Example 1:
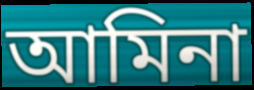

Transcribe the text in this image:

আমিনা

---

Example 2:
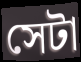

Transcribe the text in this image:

সেটা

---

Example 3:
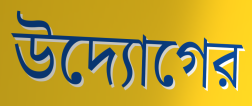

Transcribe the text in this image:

উদ্যোগের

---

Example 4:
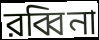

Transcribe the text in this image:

রব্বিনা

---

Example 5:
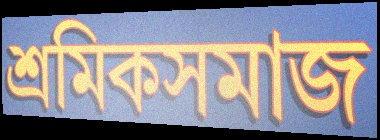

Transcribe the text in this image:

শ্রমিকসমাজ